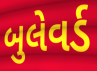
બુલેવર્ડ